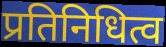
प्रतिनिधित्व